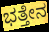
ಭತ್ತೇನ